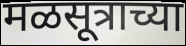
मळसूत्राच्या